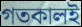
গতকালই